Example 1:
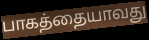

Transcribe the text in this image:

பாகத்தையாவது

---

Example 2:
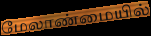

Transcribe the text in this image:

மேலாண்மையில்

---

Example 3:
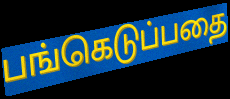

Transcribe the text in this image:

பங்கெடுப்பதை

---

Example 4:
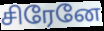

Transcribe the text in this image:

சிரேனே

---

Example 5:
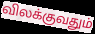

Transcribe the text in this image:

விலக்குவதும்